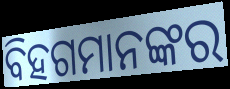
ବିହଗମାନଙ୍କର